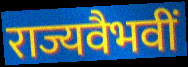
राज्यवैभवीं